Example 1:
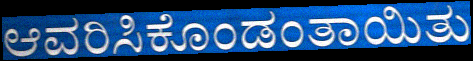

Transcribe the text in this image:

ಆವರಿಸಿಕೊಂಡಂತಾಯಿತು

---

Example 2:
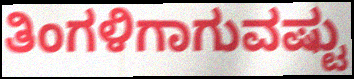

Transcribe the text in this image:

ತಿಂಗಳಿಗಾಗುವಷ್ಟು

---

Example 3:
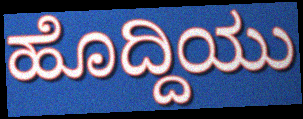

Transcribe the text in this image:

ಹೊದ್ದಿಯು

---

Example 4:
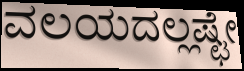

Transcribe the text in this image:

ವಲಯದಲ್ಲಷ್ಟೇ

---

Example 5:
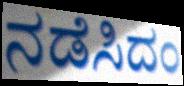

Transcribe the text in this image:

ನಡೆಸಿದಂ